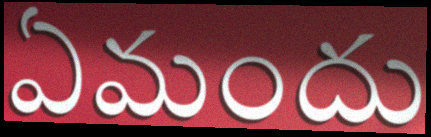
ఏమందు